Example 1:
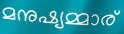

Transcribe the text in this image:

മനുഷ്യമ്മാര്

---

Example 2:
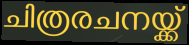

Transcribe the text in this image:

ചിത്രരചനയ്ക്ക്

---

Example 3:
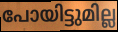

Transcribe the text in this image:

പോയിട്ടുമില്ല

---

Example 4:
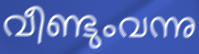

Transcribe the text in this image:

വീണ്ടുംവന്നു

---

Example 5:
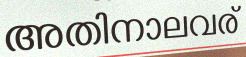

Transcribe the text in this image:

അതിനാലവര്